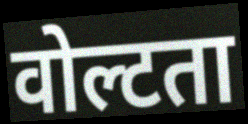
वोल्टता